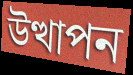
উত্থাপন